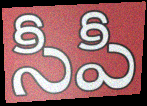
సీపీ